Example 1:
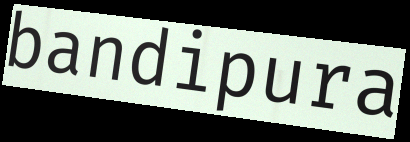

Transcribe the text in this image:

bandipura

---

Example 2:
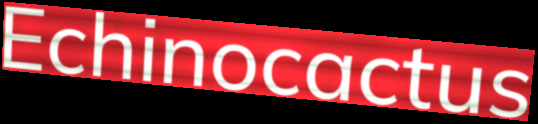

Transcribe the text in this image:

Echinocactus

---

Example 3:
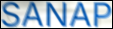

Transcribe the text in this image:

SANAP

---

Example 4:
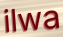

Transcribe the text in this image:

ilwa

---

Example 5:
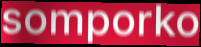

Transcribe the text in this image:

somporko